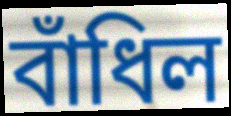
বাঁধিল